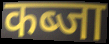
कब्जा